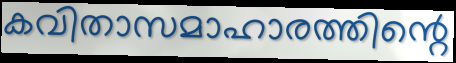
കവിതാസമാഹാരത്തിന്റെ